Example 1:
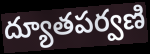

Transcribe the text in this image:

ద్యూతపర్వణి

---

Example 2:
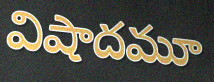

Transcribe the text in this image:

విషాదమూ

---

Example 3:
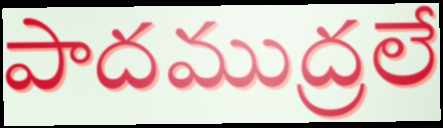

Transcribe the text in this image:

పాదముద్రలే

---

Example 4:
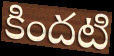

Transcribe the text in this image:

కిందటి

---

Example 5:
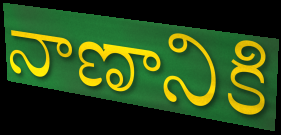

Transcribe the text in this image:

నాణానికి